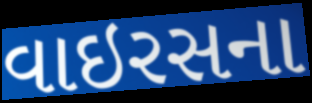
વાઇરસના